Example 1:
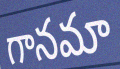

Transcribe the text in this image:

గానమా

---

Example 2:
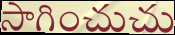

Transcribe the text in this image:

సాగించుచు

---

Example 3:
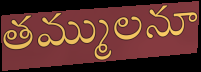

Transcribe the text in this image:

తమ్ములనూ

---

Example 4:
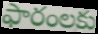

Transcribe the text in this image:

ఫారంలకు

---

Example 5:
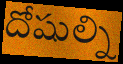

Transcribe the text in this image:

దోషుల్ని